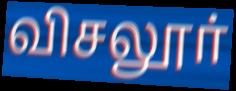
விசலூர்